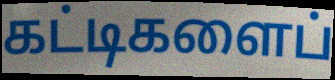
கட்டிகளைப்